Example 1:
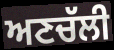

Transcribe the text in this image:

ਅਣਚੱਲੀ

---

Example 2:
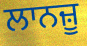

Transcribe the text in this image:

ਲਾਨਜ਼ੂ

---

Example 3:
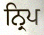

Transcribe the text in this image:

ਨ੍ਰਿਪ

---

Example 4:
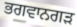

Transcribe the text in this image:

ਭਗਵਾਨਗੜ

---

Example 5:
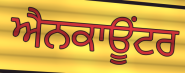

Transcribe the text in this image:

ਐਨਕਾਊਂਟਰ